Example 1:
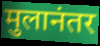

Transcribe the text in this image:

मुलानंतर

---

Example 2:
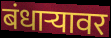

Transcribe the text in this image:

बंधाऱ्यावर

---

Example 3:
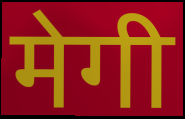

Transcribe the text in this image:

मेगी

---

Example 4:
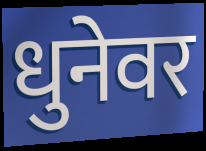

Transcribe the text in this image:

धुनेवर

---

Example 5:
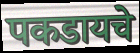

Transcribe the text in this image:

पकडायचे